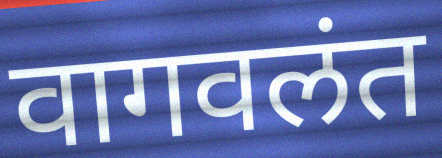
वागवलंत